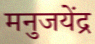
मनुजयेंद्र